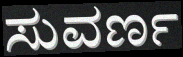
ಸುವರ್ಣ